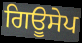
ਗਿਊਸੇਪ